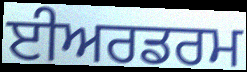
ਈਅਰਡਰਮ